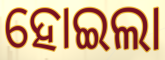
ହୋଇଲା